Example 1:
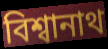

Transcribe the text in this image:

বিশ্বানাথ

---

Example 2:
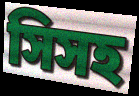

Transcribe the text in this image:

সিসহ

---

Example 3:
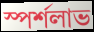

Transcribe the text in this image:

স্পর্শলাভ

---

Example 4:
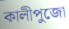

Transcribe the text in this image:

কালীপুজো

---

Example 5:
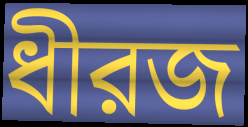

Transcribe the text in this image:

ধীরজ